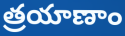
త్రయాణాం